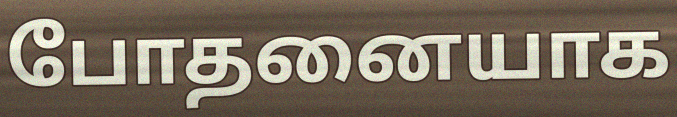
போதனையாக